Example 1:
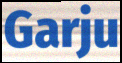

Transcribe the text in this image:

Garju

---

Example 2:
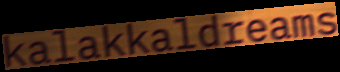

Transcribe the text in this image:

kalakkaldreams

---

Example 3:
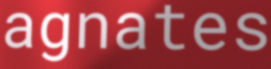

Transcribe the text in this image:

agnates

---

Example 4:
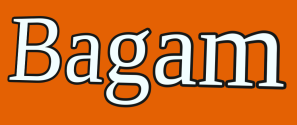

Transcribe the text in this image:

Bagam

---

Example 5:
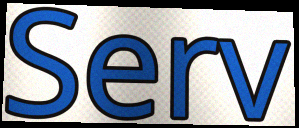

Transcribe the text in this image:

Serv